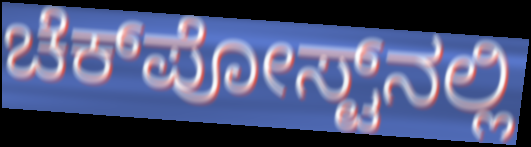
ಚೆಕ್‌ಪೋಸ್ಟ್‌ನಲ್ಲಿ